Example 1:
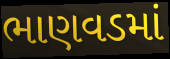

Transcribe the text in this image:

ભાણવડમાં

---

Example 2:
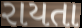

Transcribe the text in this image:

રાયતા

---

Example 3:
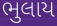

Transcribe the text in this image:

ભુલાય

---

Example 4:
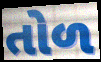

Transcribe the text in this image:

તોળ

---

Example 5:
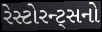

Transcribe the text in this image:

રેસ્ટોરન્ટ્સનો